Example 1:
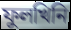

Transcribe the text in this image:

ফুলখিনি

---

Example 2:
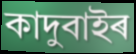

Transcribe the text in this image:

কাদুবাইৰ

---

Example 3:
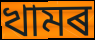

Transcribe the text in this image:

খামৰ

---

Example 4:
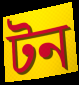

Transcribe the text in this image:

টন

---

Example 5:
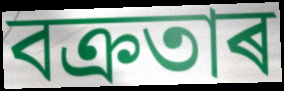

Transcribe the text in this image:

বক্ৰতাৰ